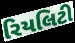
રિયલિટી